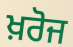
ਖ਼ਰੋਜ